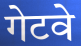
गेटवे